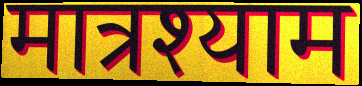
मात्रश्याम